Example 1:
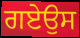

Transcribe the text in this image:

ਗਏਉਸ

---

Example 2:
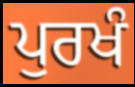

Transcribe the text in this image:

ਪੁਰਖੰ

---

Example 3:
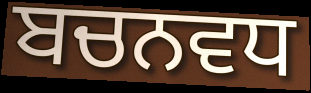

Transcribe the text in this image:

ਬਚਨਵਧ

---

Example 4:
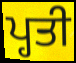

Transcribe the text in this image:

ਪ੍ਹਤੀ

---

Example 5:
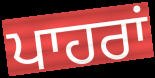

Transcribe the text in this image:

ਪਾਹਰਾਂ